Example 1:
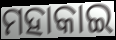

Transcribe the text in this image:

ମହାକାଇ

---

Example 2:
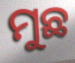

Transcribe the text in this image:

ମୁଛ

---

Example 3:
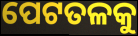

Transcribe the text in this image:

ପେଟତଳକୁ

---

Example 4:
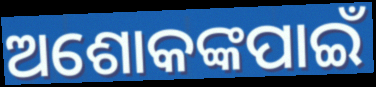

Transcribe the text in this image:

ଅଶୋକଙ୍କପାଇଁ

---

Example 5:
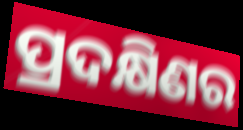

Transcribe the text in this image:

ପ୍ରଦକ୍ଷିଣର